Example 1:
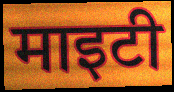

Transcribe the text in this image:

माइटी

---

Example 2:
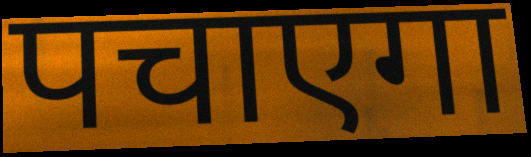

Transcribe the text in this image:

पचाएगा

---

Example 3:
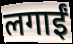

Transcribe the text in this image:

लगाईं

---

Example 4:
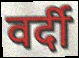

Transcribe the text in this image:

वर्दी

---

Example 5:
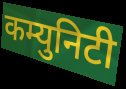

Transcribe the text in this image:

कम्युनिटी